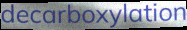
decarboxylation